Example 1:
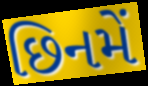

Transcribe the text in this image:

છિનમેં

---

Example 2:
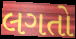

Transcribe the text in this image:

લગતો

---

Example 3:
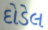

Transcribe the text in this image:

દોડેલ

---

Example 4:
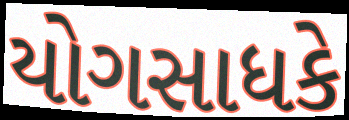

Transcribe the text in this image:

યોગસાધકે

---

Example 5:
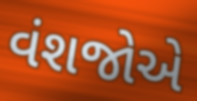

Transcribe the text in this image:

વંશજોએ